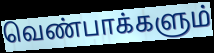
வெண்பாக்களும்